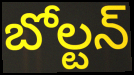
బోల్టన్